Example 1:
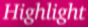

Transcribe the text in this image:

Highlight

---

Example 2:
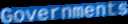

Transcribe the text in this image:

Governments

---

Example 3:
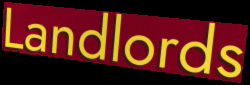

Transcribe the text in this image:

Landlords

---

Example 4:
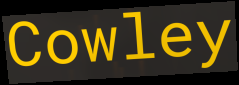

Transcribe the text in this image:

Cowley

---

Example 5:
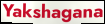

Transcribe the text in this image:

Yakshagana